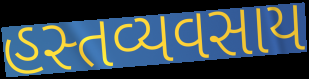
હસ્તવ્યવસાય